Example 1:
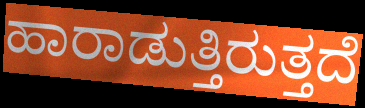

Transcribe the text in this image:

ಹಾರಾಡುತ್ತಿರುತ್ತದೆ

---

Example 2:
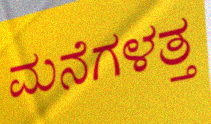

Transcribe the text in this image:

ಮನೆಗಳತ್ತ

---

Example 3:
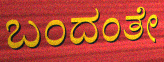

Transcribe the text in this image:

ಬಂದಂತೇ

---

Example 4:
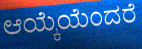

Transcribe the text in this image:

ಆಯ್ಕೆಯೆಂದರೆ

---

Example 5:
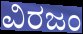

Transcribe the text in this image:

ವಿರಜಂ